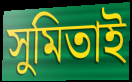
সুমিতাই